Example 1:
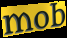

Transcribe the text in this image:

mob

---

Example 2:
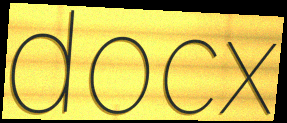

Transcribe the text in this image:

docx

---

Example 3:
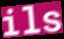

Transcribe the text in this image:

ils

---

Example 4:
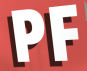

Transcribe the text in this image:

PF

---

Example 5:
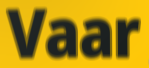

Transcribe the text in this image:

Vaar